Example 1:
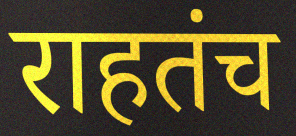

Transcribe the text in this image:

राहतंच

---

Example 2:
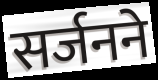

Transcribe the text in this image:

सर्जनने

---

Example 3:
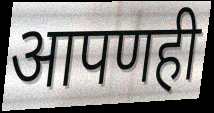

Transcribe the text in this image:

आपणही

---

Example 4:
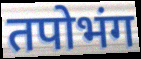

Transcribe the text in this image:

तपोभंग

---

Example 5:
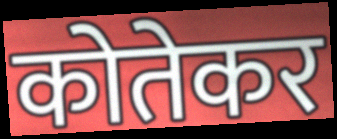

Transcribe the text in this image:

कोतेकर